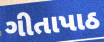
ગીતાપાઠ